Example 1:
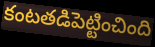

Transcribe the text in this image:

కంటతడిపెట్టించింది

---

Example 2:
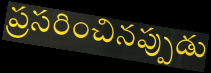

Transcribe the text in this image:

ప్రసరించినప్పుడు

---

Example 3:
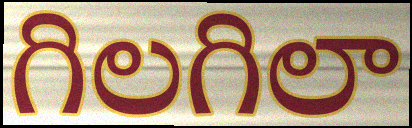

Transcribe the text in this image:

గిలగిలా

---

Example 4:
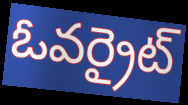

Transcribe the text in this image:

ఓవర్రైట్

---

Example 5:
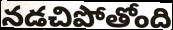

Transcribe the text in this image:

నడచిపోతోంది